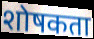
शोषकता